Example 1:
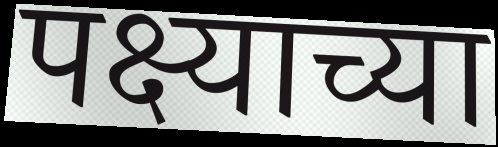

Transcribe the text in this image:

पक्ष्याच्या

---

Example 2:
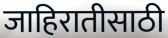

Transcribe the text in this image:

जाहिरातीसाठी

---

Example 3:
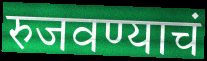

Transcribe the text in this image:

रुजवण्याचं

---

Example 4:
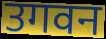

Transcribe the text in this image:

उगवन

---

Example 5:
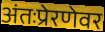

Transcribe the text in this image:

अंतःप्रेरणेवर